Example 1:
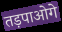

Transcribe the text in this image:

तड़पाओगे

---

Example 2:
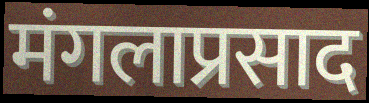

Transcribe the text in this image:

मंगलाप्रसाद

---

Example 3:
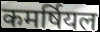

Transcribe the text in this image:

कमर्षियल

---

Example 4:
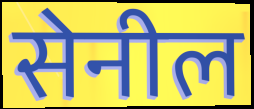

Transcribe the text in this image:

सेनील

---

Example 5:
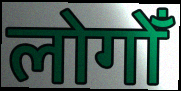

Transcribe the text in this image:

लोगोँ